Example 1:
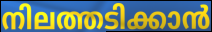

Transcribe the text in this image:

നിലത്തടിക്കാൻ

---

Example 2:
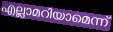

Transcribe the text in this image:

എല്ലാമറിയാമെന്ന്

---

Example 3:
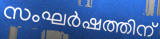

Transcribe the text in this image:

സംഘർഷത്തിന്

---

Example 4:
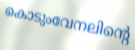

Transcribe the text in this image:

കൊടുംവേനലിന്റെ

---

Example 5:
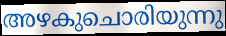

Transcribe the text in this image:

അഴകുചൊരിയുന്നു